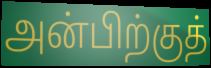
அன்பிற்குத்